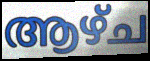
ആഴ്ച